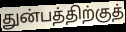
துன்பத்திற்குத்